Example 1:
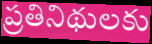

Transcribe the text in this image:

ప్రతినిథులకు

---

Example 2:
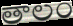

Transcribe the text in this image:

తాలం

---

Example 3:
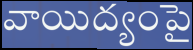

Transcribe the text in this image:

వాయిద్యంపై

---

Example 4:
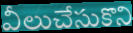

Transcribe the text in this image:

వీలుచేసుకొని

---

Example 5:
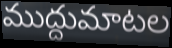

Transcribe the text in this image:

ముద్దుమాటల